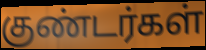
குண்டர்கள்